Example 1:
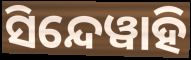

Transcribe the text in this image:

ସିନ୍ଦେୱାହି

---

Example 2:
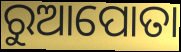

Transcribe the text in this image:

ରୁଆପୋତା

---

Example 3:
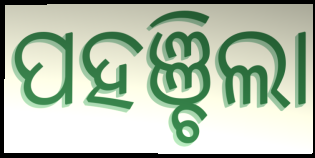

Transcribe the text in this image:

ପହଞ୍ଚିଲା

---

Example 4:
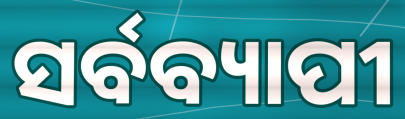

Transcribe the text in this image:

ସର୍ବବ୍ୟାପୀ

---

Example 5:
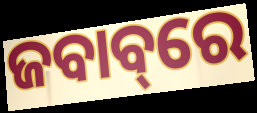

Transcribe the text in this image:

ଜବାବ୍‌ରେ